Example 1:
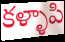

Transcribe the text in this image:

కళ్ళాపి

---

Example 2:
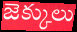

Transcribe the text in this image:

జెక్కులు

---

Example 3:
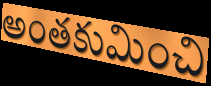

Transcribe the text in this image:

అంతకుమించి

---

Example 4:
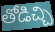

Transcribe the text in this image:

తోడిచ్చి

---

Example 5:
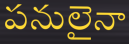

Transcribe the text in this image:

పనులైనా